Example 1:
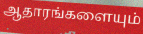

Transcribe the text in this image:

ஆதாரங்களையும்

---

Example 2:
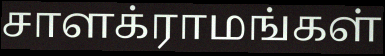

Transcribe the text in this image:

சாளக்ராமங்கள்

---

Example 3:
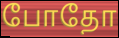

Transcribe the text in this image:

போதோ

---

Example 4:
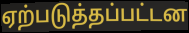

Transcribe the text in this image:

ஏற்படுத்தப்பட்டன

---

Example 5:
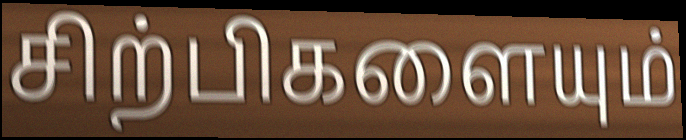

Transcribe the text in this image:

சிற்பிகளையும்